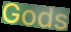
Gods